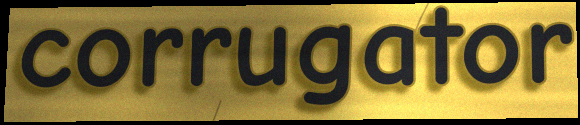
corrugator